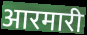
आरमारी